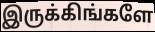
இருக்கிங்களே